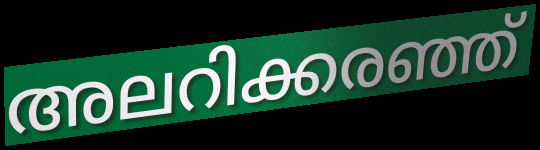
അലറിക്കരഞ്ഞ്